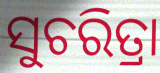
ସୁଚରିତ୍ରା